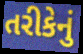
તરીકેનું